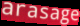
arasage